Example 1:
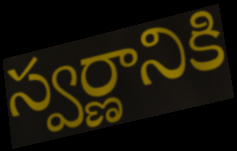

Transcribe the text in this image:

స్వర్ణానికి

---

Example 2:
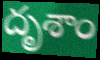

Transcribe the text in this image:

దృశాం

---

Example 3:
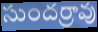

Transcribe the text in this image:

సుందర్రావు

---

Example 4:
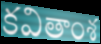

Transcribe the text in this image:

కవితాంశ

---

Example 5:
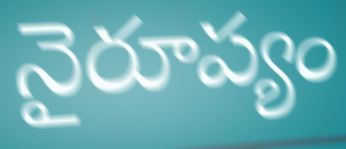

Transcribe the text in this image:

నైరూప్యం